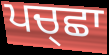
ਪਚ੍ਛਾ